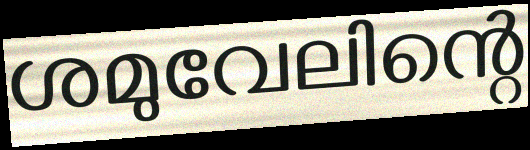
ശമുവേലിന്റെ